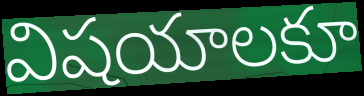
విషయాలకూ